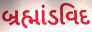
બ્રહ્માંડવિદ